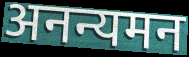
अनन्यमन